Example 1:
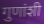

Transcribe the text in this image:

गुणांशी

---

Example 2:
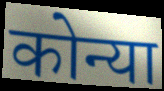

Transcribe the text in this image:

कोन्या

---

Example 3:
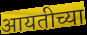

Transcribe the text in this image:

आयतीच्या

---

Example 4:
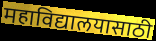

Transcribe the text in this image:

महाविद्यालयासाठी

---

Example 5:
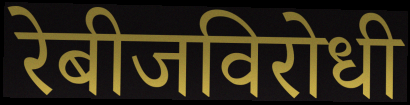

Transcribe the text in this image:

रेबीजविरोधी